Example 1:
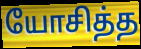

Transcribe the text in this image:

யோசித்த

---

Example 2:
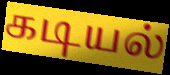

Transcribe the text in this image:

கடியல்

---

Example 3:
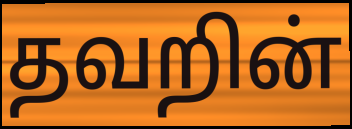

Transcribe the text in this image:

தவறின்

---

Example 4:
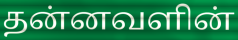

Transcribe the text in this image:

தன்னவளின்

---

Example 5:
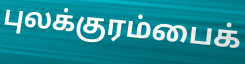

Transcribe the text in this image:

புலக்குரம்பைக்